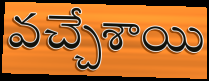
వచ్చేశాయి